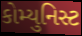
કોમ્યુનિસ્ટ